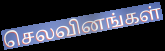
செலவினங்கள்